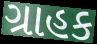
ગ્રાહક